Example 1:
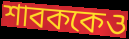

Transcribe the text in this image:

শাবককেও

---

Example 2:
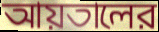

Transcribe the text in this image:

আয়তালের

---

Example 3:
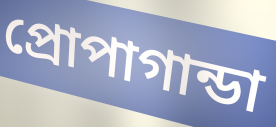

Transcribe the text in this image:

প্রোপাগান্ডা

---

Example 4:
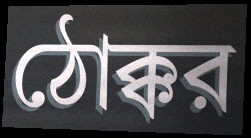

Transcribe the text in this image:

ঠোক্কর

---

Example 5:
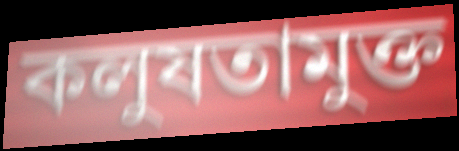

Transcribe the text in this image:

কলুষতামুক্ত